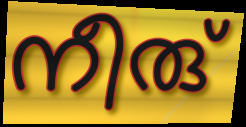
നീരു്